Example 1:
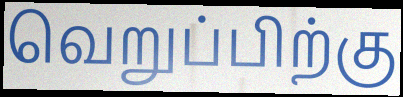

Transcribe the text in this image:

வெறுப்பிற்கு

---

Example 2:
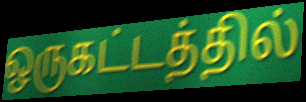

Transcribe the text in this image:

ஒருகட்டத்தில்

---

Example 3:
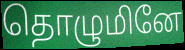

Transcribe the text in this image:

தொழுமினே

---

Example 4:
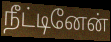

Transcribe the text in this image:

நீட்டினேன்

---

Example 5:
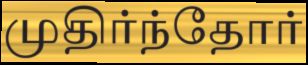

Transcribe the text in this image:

முதிர்ந்தோர்